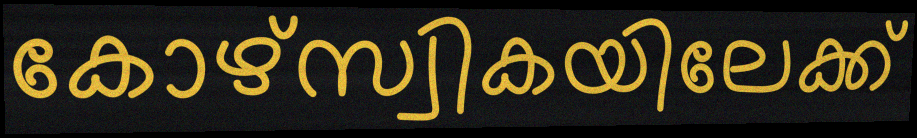
കോഴ്സ്വികയിലേക്ക്